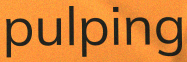
pulping